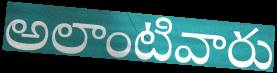
అలాంటివారు